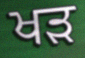
ਖੜ